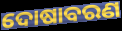
ଦୋଷାବରଣ